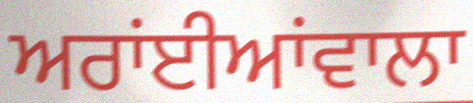
ਅਰਾਂਈਆਂਵਾਲਾ